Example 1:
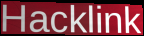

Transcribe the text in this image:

Hacklink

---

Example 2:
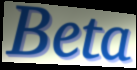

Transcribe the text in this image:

Beta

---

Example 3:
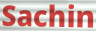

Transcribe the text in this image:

Sachin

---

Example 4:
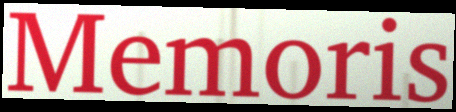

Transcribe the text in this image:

Memoris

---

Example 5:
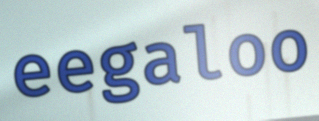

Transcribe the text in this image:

eegaloo